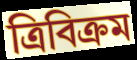
ত্রিবিক্রম